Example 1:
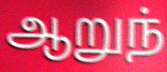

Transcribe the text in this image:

ஆறுந்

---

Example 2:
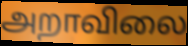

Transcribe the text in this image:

அறாவிலை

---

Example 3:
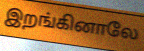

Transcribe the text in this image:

இறங்கினாலே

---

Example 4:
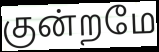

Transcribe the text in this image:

குன்றமே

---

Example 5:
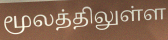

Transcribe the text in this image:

மூலத்திலுள்ள